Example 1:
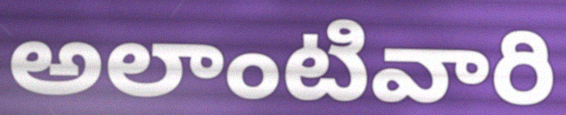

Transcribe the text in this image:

అలాంటివారి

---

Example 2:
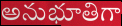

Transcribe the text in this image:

అనుభూతిగా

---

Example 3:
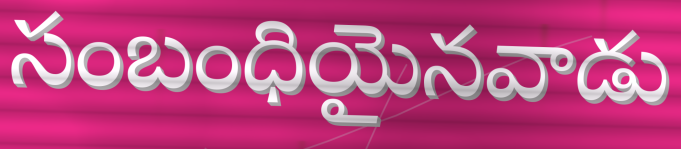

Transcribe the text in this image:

సంబంధియైనవాడు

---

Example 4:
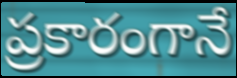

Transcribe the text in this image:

ప్రకారంగానే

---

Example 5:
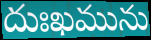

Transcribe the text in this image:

దుఃఖమును